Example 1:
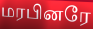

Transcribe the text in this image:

மரபினரே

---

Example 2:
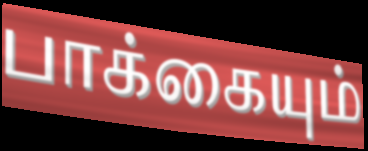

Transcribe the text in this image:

பாக்கையும்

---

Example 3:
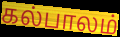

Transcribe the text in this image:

கல்பாலம்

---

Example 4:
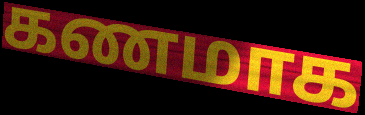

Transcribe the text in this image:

கணமாக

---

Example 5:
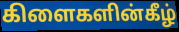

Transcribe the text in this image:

கிளைகளின்கீழ்